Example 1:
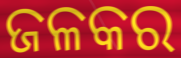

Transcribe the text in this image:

ଜଳକର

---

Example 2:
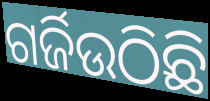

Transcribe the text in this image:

ଗର୍ଜିଉଠିଛି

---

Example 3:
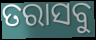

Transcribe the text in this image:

ତରାସବୁ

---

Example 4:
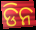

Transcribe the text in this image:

ଡିନ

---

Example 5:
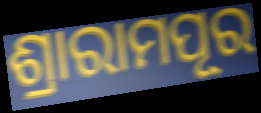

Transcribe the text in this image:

ଶ୍ରାରାମପୂର